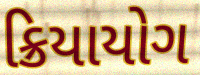
ક્રિયાયોગ